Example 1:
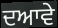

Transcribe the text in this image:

ਦਆਵੇ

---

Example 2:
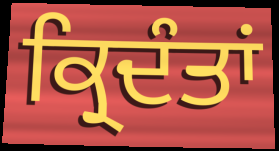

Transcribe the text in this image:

ਕ੍ਰਿਦੰਤਾਂ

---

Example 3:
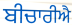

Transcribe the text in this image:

ਬੀਚਾਰੀਐ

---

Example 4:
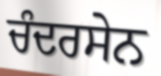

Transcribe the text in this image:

ਚੰਦਰਸੇਨ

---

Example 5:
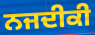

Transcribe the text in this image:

ਨਜਦੀਕੀ